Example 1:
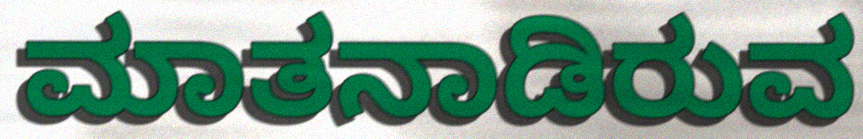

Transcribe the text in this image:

ಮಾತನಾಡಿರುವ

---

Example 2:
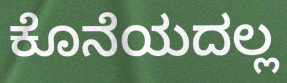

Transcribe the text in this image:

ಕೊನೆಯದಲ್ಲ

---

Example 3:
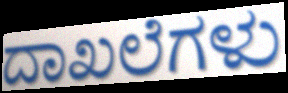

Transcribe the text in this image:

ದಾಖಲೆಗಳು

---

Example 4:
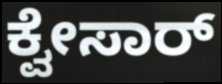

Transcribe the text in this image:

ಕ್ವೇಸಾರ್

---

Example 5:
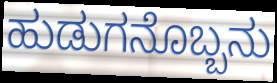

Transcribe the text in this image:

ಹುಡುಗನೊಬ್ಬನು